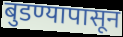
बुडण्यापासून